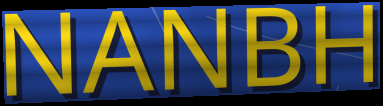
NANBH